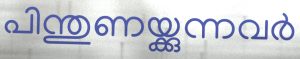
പിന്തുണയ്ക്കുന്നവർ